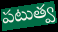
పటుత్వ